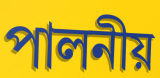
পালনীয়